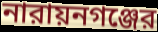
নারায়নগঞ্জের